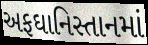
અફઘાનિસ્તાનમાં